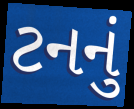
ટનનું